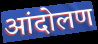
आंदोलण